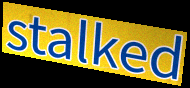
stalked